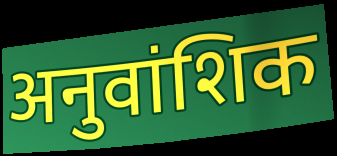
अनुवांशिक